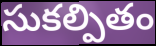
సుకల్పితం